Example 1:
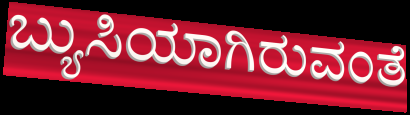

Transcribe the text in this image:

ಬ್ಯುಸಿಯಾಗಿರುವಂತೆ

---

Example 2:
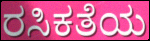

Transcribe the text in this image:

ರಸಿಕತೆಯ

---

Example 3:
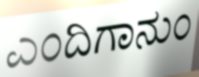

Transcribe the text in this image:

ಎಂದಿಗಾನುಂ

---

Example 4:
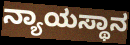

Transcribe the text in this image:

ನ್ಯಾಯಸ್ಥಾನ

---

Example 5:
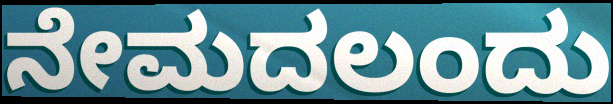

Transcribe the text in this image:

ನೇಮದಲಂದು